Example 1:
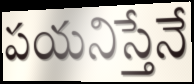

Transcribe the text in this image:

పయనిస్తేనే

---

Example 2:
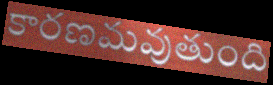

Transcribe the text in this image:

కారణమవుతుంది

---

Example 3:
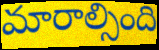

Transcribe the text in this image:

మారాల్సింది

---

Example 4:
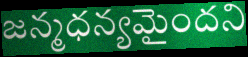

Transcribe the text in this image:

జన్మధన్యమైందని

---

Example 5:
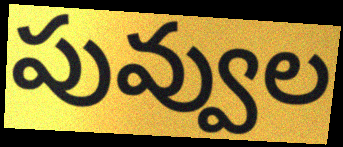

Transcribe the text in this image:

పువ్వుల